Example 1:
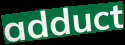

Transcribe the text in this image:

adduct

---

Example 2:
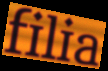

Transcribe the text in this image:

filia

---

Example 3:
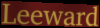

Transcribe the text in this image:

Leeward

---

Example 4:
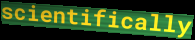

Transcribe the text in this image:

scientifically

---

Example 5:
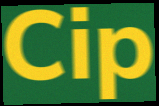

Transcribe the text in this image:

Cip